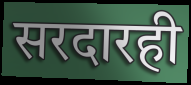
सरदारही